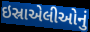
ઇસ્રાએલીઓનું